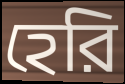
হেরি